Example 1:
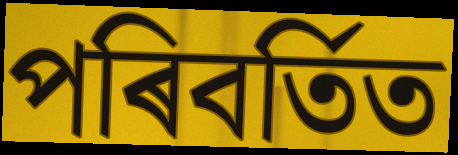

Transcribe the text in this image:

পৰিবৰ্তিত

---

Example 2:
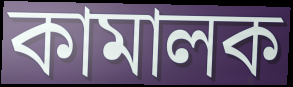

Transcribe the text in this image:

কামালক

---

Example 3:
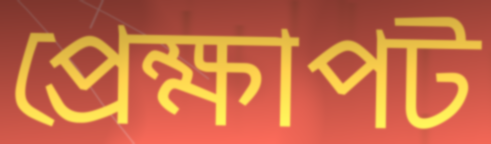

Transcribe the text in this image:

প্ৰেক্ষাপট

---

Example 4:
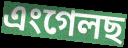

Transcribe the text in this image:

এংগেলছ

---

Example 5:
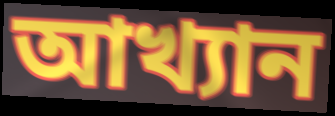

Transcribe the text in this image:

আখ্যান